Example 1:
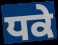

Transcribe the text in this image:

ਧਕੇ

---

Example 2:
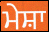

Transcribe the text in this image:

ਮੇਸ਼ਾ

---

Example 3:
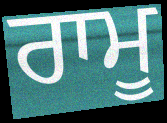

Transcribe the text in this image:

ਰਾਮੂ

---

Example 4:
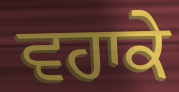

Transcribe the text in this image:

ਵਹਾਕੇ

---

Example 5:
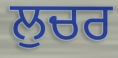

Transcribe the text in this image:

ਲੁਚਰ